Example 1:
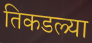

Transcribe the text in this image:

तिकडल्या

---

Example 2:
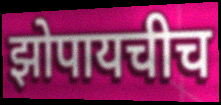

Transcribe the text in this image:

झोपायचीच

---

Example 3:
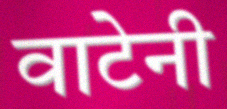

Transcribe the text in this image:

वाटेनी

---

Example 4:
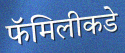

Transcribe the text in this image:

फॅमिलीकडे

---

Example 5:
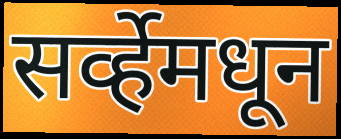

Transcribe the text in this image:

सर्व्हेमधून